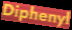
Diphenyl